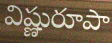
విష్ణురూపా